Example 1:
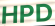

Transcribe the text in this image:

HPD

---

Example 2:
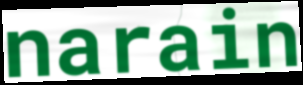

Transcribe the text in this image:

narain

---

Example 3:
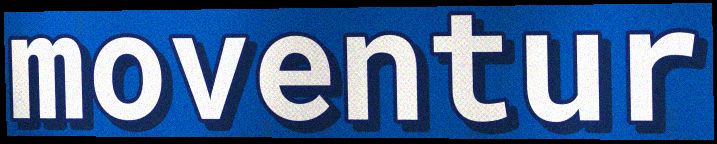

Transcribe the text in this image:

moventur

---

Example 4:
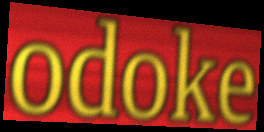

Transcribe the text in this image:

odoke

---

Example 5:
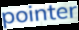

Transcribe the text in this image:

pointer